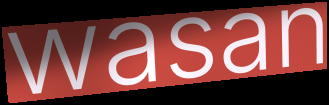
wasan